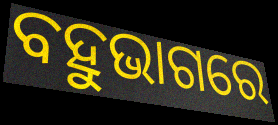
ବହୁଭାଗରେ